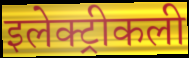
इलेक्ट्रीकली